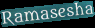
Ramasesha